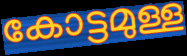
കോട്ടമുള്ള